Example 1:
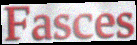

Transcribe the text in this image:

Fasces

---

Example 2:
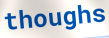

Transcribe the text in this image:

thoughs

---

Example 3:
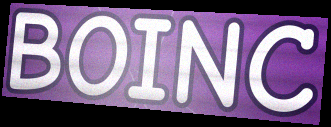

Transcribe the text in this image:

BOINC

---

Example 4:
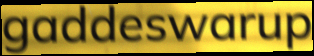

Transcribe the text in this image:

gaddeswarup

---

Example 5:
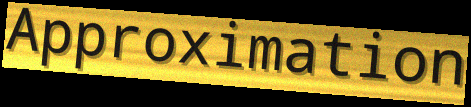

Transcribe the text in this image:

Approximation